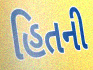
હિતની